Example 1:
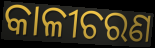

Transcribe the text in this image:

କାଳୀଚରଣ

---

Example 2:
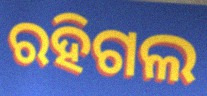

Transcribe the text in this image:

ରହିଗଲ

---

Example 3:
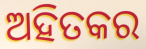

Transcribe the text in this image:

ଅହିତକର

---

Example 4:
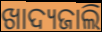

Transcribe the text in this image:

ଖାଦ୍ୟଜାଲି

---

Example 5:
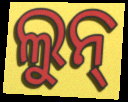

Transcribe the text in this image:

ଲୁନ୍